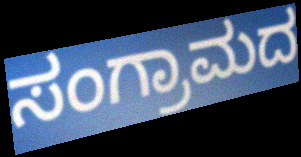
ಸಂಗ್ರಾಮದ